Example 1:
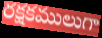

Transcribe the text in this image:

రక్షకములుగా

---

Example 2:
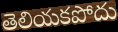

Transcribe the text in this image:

తెలియకపోదు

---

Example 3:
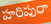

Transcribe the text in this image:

హరిపురా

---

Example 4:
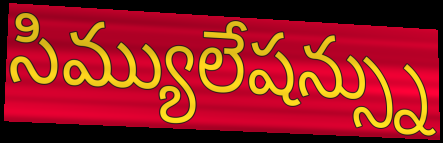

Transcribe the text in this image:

సిమ్యులేషన్స్ను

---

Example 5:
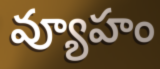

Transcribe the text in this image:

వ్యూహం